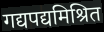
गद्यपद्यमिश्रित